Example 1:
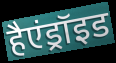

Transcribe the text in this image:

हैएंड्रॉइड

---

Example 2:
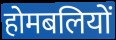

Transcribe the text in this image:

होमबलियों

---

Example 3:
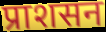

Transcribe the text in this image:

प्राशसन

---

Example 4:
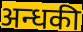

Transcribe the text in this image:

अन्धकी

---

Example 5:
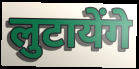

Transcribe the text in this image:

लुटायेंगे